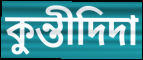
কুন্তীদিদা